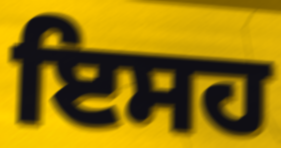
ਇਸਹ